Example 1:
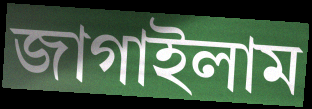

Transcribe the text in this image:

জাগাইলাম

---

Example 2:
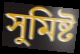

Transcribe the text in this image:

সুমিষ্ট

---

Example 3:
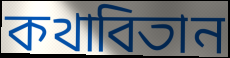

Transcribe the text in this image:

কথাবিতান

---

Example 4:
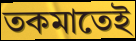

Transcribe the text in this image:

তকমাতেই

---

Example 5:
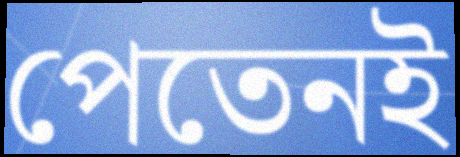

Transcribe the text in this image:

পেতেনই